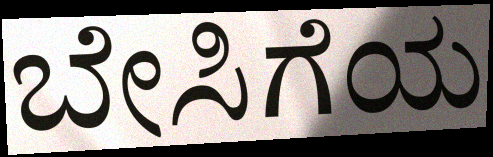
ಬೇಸಿಗೆಯ